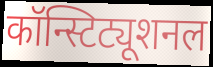
कॉन्स्टिट्यूशनल